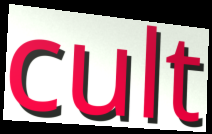
cult